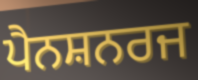
ਪੈਨਸ਼ਨਰਜ